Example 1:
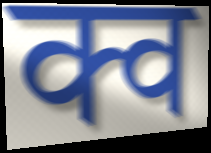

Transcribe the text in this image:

क्व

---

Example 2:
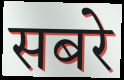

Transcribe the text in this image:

सबरे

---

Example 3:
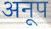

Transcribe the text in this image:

अनूप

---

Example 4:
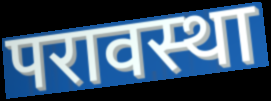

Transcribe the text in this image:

परावस्था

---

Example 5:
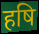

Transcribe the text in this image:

हषि